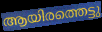
ആയിരത്തെട്ടു